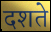
दशते